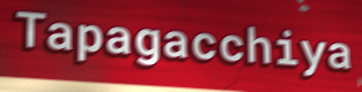
Tapagacchiya